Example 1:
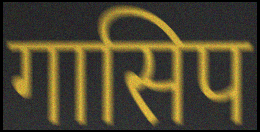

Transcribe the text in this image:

गासिप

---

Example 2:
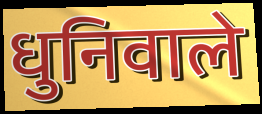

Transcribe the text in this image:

धुनिवाले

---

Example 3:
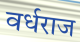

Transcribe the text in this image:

वर्धराज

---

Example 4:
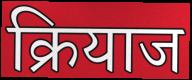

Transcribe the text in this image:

क्रियाज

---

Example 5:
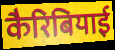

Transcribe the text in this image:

कैरिबियाई